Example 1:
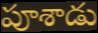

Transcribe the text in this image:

పూశాడు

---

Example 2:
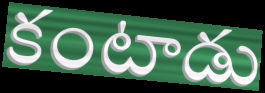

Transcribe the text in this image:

కంటాడు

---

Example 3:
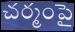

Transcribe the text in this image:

చర్మంపై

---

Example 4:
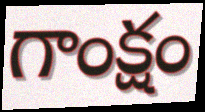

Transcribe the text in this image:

గాంక్షం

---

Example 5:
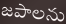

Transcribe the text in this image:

జపాలను